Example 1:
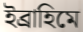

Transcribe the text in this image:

ইব্ৰাহিমে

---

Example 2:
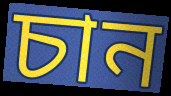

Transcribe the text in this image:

চান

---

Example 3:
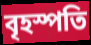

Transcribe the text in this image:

বৃহস্পতি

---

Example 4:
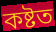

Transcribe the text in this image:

কষ্টত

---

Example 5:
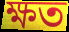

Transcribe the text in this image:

ক্ষত